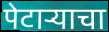
पेटाऱ्याचा